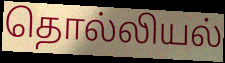
தொல்லியல்